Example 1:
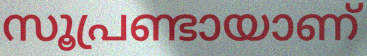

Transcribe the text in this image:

സൂപ്രണ്ടായാണ്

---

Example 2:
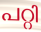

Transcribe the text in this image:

പറ്റി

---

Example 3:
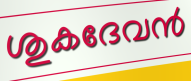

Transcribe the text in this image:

ശുകദേവൻ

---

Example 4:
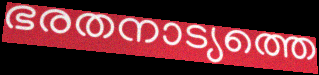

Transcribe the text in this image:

ഭരതനാട്യത്തെ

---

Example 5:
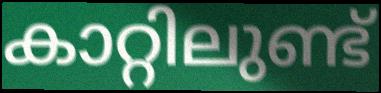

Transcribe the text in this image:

കാറ്റിലുണ്ട്